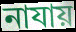
নাযায়